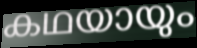
കഥയായും